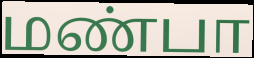
மண்பா